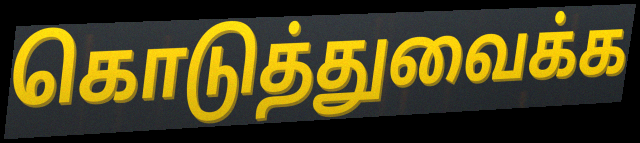
கொடுத்துவைக்க